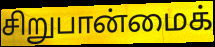
சிறுபான்மைக்